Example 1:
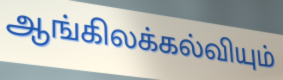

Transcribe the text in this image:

ஆங்கிலக்கல்வியும்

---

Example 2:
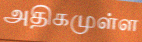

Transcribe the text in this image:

அதிகமுள்ள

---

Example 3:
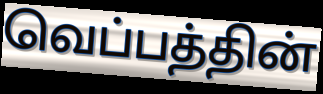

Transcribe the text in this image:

வெப்பத்தின்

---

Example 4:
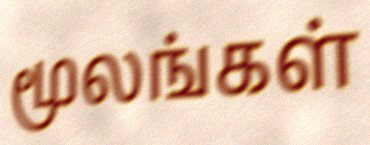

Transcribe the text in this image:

மூலங்கள்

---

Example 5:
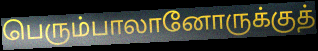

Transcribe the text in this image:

பெரும்பாலானோருக்குத்